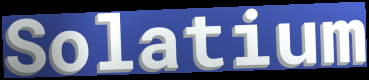
Solatium